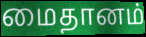
மைதானம்